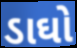
ડાઘો